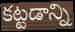
కట్టడాన్ని